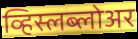
व्हिस्लब्लोअर